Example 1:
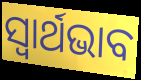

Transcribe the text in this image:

ସ୍ଵାର୍ଥଭାବ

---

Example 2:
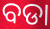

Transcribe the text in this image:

ବଡା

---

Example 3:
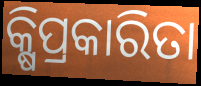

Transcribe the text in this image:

କ୍ଷିପ୍ରକାରିତା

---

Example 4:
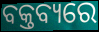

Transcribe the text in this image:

ବକ୍ତବ୍ୟରେ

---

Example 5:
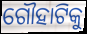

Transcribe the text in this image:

ଗୌହାଟିକୁ